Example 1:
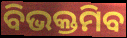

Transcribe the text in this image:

ବିଭକ୍ତମିବ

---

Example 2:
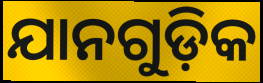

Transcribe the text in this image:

ଯାନଗୁଡ଼ିକ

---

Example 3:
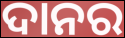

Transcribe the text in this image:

ଦାନର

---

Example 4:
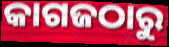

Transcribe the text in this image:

କାଗଜଠାରୁ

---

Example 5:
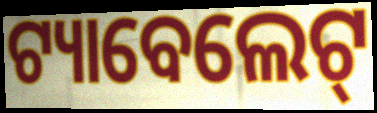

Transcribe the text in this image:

ଟ୍ୟାବେଲେଟ୍